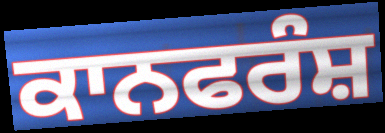
ਕਾਨਫਰੰਸ਼